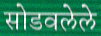
सोडवलेले